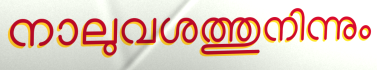
നാലുവശത്തുനിന്നും